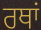
ਰਥਾਂ